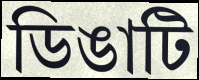
ডিঙাটি